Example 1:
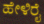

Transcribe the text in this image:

ಹೇಳಿರೈ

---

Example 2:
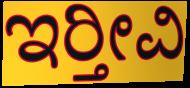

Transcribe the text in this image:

ಇರ‍್ತೀವಿ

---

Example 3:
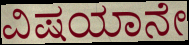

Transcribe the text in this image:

ವಿಷಯಾನೇ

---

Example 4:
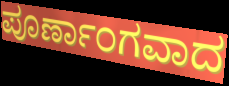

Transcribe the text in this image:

ಪೂರ್ಣಾಂಗವಾದ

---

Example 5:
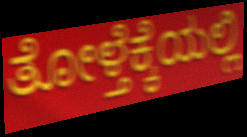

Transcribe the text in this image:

ತೋಳ್ತೆಕ್ಕೆಯಲ್ಲಿ